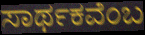
ಸಾರ್ಥಕವೆಂಬ